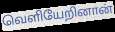
வெளியேறினான்